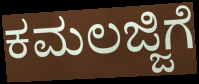
ಕಮಲಜ್ಜಿಗೆ